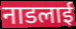
नाडलाई